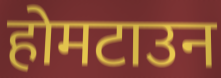
होमटाउन